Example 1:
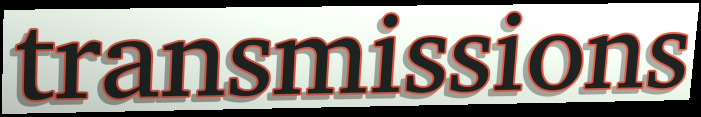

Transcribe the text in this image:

transmissions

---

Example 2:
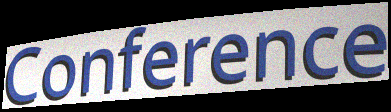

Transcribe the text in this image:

Conference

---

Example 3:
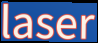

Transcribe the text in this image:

laser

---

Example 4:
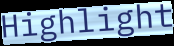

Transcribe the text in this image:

Highlight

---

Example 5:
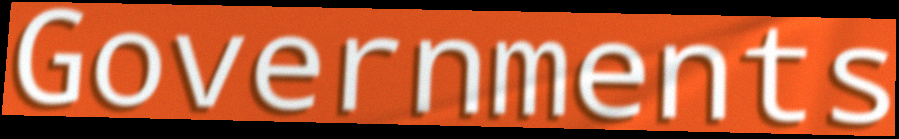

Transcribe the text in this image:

Governments